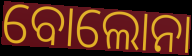
ବୋଲୋନା